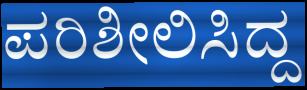
ಪರಿಶೀಲಿಸಿದ್ದ